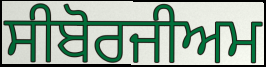
ਸੀਬੋਰਜੀਅਮ